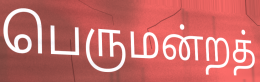
பெருமன்றத்